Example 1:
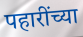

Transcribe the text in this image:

पहारींच्या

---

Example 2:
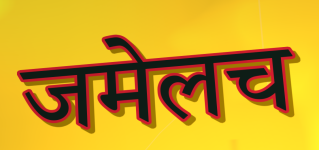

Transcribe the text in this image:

जमेलच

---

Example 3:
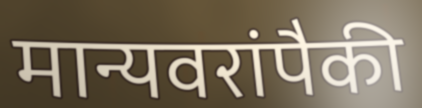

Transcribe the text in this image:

मान्यवरांपैकी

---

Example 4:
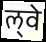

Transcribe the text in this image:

ल्वे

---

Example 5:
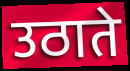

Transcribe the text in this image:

उठाते